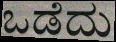
ಒಡೆದು